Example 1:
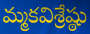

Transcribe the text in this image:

మ్మకవిశ్రేష్ఠు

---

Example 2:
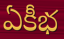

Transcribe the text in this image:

ఏకీభ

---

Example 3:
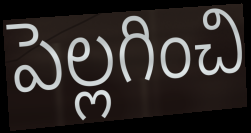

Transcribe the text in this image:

పెల్లగించి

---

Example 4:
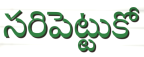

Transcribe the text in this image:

సరిపెట్టుకో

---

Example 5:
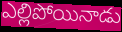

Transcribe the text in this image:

ఎల్లిపోయినాడు